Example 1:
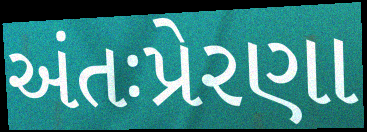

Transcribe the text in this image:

અંતઃપ્રેરણા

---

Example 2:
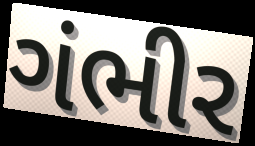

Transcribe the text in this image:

ગંભીર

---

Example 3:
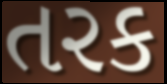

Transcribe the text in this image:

તરક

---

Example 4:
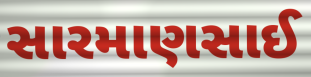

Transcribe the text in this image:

સારમાણસાઈ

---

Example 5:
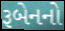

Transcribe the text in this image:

રૂબેનનો